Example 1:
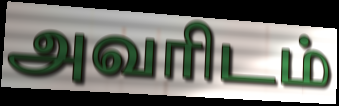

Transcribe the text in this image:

அவரிடம்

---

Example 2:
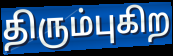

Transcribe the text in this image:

திரும்புகிற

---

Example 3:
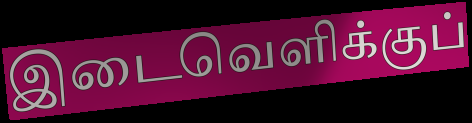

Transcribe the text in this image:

இடைவெளிக்குப்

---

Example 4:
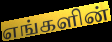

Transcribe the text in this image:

எங்களின்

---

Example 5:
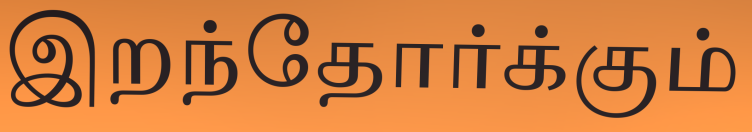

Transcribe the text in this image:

இறந்தோர்க்கும்